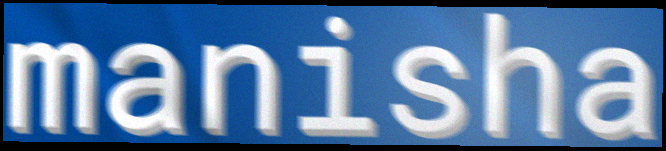
manisha